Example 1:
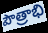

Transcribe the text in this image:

పౌత్రాభి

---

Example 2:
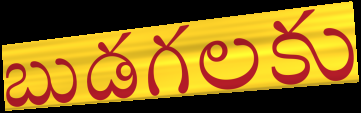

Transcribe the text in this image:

బుడగలకు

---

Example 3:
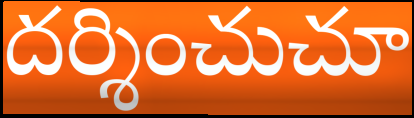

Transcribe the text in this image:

దర్శించుచూ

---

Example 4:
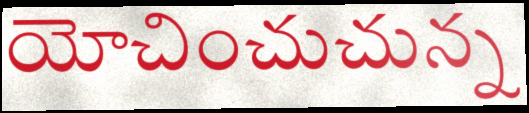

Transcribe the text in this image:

యోచించుచున్న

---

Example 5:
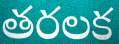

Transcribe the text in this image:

తరలక